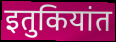
इतुकियांत